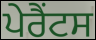
ਪੇਰੈਂਟਸ